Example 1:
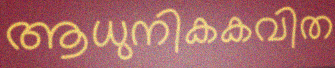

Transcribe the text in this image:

ആധുനികകവിത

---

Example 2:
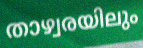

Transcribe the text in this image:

താഴ്വരയിലും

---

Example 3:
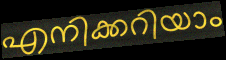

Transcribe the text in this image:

എനിക്കറിയാം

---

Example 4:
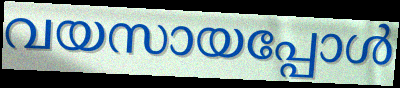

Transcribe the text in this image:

വയസായപ്പോൾ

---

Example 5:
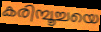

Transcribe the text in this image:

കരിമ്പൂച്ചയെ